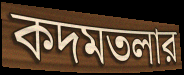
কদমতলার